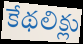
కేథలిక్లు